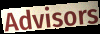
Advisors